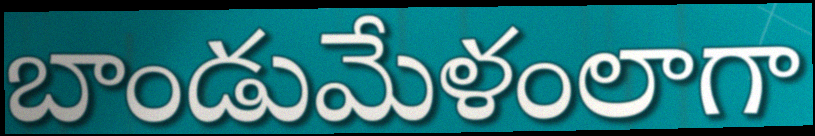
బాండుమేళంలాగా